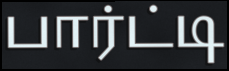
பார்ட்டி